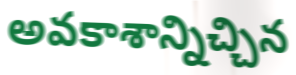
అవకాశాన్నిచ్చిన